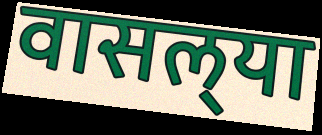
वासल्या